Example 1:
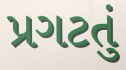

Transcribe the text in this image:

પ્રગટતું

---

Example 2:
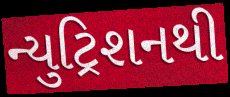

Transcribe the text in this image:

ન્યુટ્રિશનથી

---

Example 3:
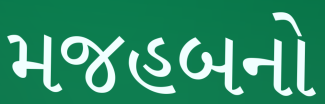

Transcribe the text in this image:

મજહબનો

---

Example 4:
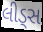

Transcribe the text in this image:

લીડ્સ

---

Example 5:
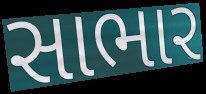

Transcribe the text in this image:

સાભાર